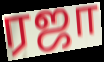
ரஜா